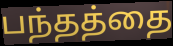
பந்தத்தை